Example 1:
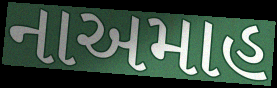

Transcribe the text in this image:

નાઅમાહ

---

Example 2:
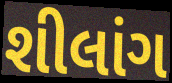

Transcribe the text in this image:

શીલાંગ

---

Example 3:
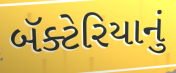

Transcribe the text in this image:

બૅક્ટેરિયાનું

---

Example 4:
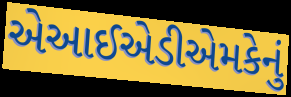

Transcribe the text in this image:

એઆઈએડીએમકેનું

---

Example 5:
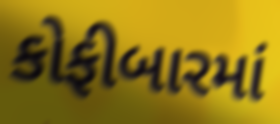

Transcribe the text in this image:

કોફીબારમાં